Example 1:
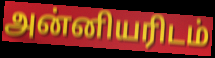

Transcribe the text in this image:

அன்னியரிடம்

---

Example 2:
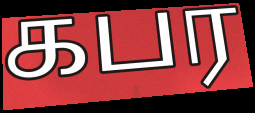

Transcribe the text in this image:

கபர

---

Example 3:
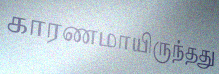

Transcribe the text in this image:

காரணமாயிருந்தது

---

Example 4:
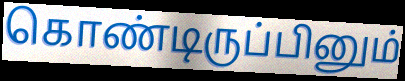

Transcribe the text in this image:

கொண்டிருப்பினும்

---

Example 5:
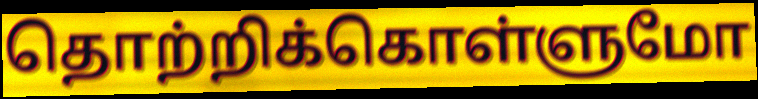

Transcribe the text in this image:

தொற்றிக்கொள்ளுமோ